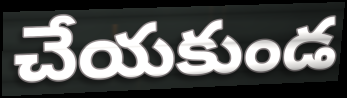
చేయకుండ